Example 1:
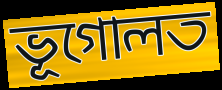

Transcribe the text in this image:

ভূগোলত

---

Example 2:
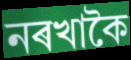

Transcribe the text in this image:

নৰখাকৈ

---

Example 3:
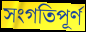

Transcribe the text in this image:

সংগতিপূৰ্ণ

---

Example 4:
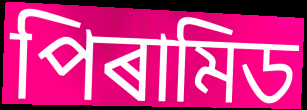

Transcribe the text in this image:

পিৰামিড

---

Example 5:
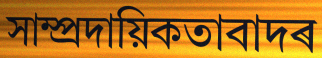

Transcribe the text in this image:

সাম্প্ৰদায়িকতাবাদৰ